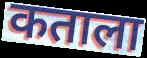
कताला